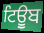
ਟਿਊੂਬ